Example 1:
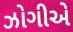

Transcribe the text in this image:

ઝોગીએ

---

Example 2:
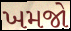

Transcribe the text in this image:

ખમજો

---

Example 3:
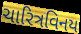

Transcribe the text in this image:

ચારિત્રવિનય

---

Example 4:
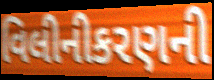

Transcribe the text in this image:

વિલીનીકરણની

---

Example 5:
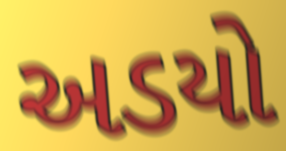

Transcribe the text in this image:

અડયો